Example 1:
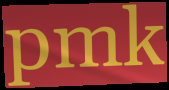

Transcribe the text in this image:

pmk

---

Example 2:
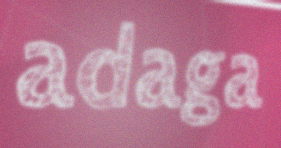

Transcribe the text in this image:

adaga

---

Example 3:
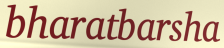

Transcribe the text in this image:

bharatbarsha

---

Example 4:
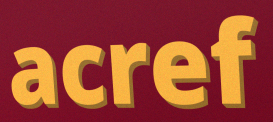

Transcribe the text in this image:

acref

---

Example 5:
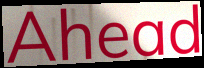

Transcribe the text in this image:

Ahead